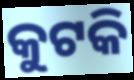
କୁଟକି